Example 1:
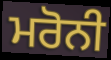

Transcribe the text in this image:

ਮਰੋਨੀ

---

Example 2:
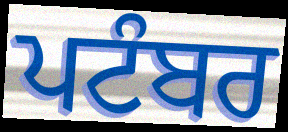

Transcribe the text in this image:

ਪਟੰਬਰ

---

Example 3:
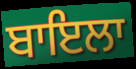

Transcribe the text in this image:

ਬਾਇਲਾ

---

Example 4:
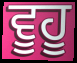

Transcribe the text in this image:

ਵੂਹੂ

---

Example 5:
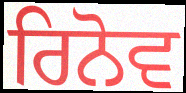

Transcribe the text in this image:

ਰਿਨੋਵ